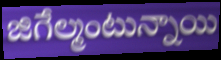
జిగేల్మంటున్నాయి